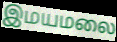
இமயமலை